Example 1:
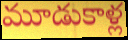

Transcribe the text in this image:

మూడుకాళ్ల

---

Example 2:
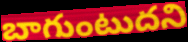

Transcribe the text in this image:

బాగుంటుదని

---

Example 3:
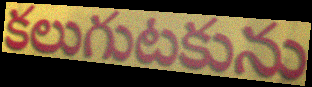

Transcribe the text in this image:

కలుగుటకును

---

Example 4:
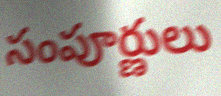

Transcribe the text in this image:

సంపూర్ణులు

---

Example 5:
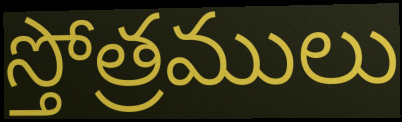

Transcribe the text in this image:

స్తోత్రములు